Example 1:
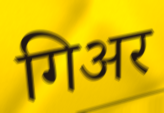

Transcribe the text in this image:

गिअर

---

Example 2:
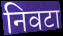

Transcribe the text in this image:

निवटा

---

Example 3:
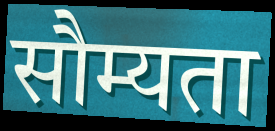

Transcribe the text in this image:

सौम्यता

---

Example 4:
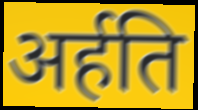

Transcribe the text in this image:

अर्हति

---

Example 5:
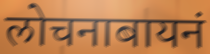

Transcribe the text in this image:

लोचनाबायनं